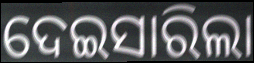
ଦେଇସାରିଲା